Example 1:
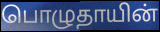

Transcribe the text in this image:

பொழுதாயின்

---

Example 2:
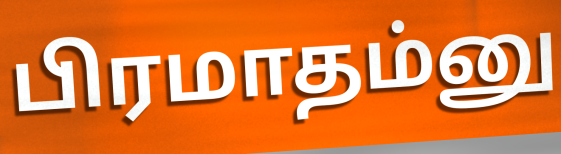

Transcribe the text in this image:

பிரமாதம்னு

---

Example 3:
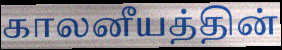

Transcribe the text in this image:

காலனீயத்தின்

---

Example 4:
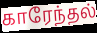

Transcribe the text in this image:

காரேந்தல்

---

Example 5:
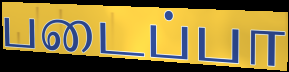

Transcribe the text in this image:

படைப்பா